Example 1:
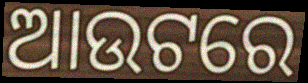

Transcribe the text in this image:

ଆଉଟରେ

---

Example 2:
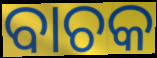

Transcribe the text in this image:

ବାଚକ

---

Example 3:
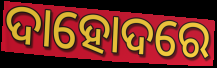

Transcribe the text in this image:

ଦାହୋଦରେ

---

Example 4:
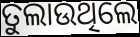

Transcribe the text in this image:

ତୁଲାଉଥିଲେ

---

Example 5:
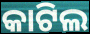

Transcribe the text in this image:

କାଟିଲ